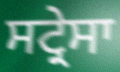
ਸਟ੍ਰੇਸਾ